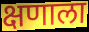
क्षणाला